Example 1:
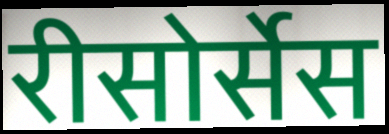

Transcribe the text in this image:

रीसोर्सेस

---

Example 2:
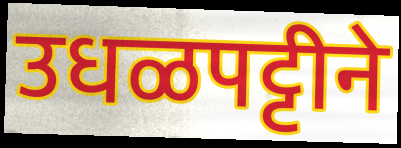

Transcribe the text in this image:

उधळपट्टीने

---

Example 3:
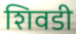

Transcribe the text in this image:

शिवडी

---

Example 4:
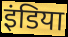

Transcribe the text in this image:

इंडिया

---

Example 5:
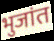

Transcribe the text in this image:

भुजांत